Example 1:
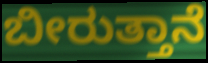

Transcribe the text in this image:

ಬೀರುತ್ತಾನೆ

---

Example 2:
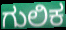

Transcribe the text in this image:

ಗುಲಿಕ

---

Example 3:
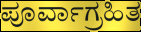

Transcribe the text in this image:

ಪೂರ್ವಾಗ್ರಹಿತ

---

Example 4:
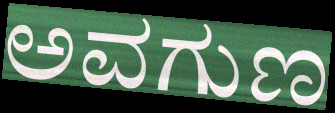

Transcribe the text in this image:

ಅವಗುಣ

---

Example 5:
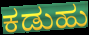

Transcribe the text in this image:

ಕಡುಹು